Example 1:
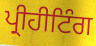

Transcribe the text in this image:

ਪ੍ਰੀਹੀਟਿੰਗ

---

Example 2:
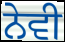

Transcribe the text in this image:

ਨੇਵੀ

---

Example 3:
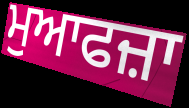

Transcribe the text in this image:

ਮੁਆਫਜ਼ਾ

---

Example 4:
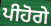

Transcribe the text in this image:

ਪੀਹੋਗੇ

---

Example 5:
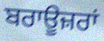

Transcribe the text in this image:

ਬਰਾਊਜ਼ਰਾਂ